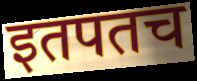
इतपतच